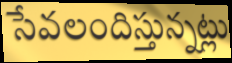
సేవలందిస్తున్నట్లు